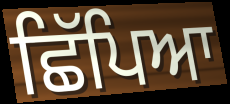
ਛਿੱਪਿਆ